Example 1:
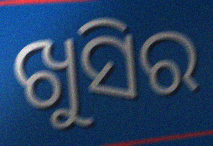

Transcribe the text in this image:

ଖୁସିର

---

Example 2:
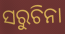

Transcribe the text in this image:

ସରୁଚିନା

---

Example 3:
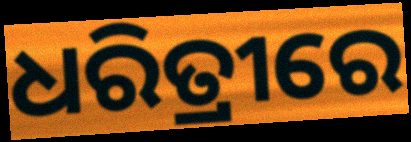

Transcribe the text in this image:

ଧରିତ୍ରୀରେ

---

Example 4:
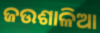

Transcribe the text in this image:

ଜଉଶାଳିଆ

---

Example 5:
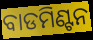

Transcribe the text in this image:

ବାଡମିଣ୍ଟନ